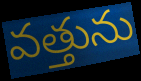
వత్తును